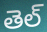
తెల్